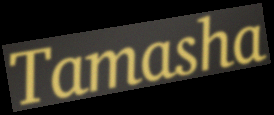
Tamasha